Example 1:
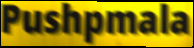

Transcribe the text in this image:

Pushpmala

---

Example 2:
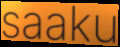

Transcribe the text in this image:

saaku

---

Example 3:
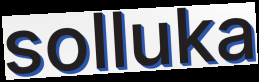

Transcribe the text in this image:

solluka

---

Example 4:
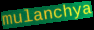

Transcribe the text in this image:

mulanchya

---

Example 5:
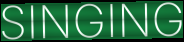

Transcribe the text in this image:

SINGING